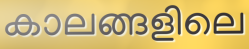
കാലങ്ങളിലെ